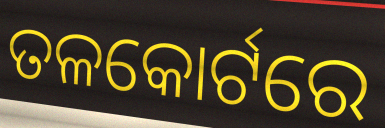
ତଳକୋର୍ଟରେ